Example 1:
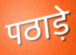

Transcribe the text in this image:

पठाड़े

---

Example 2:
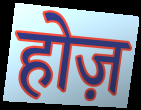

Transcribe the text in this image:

होज़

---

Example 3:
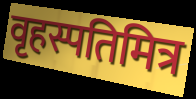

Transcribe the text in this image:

वृहस्पतिमित्र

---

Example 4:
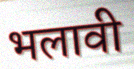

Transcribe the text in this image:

भलावी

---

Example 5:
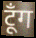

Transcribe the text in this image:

टूँग